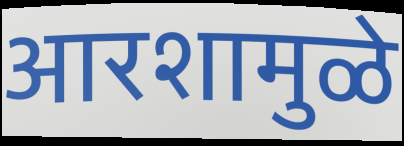
आरशामुळे